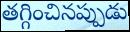
తగ్గించినప్పుడు